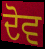
ਦੋਵ